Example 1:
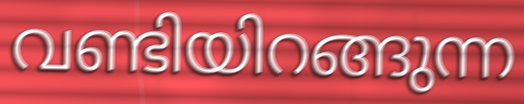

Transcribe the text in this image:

വണ്ടിയിറങ്ങുന്ന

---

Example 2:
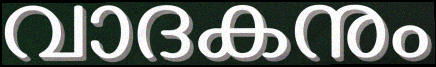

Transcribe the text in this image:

വാദകനും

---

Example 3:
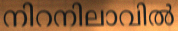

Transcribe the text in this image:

നിറനിലാവിൽ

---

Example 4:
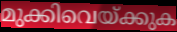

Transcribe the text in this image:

മുക്കിവെയ്ക്കുക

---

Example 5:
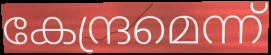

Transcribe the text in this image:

കേന്ദ്രമെന്ന്